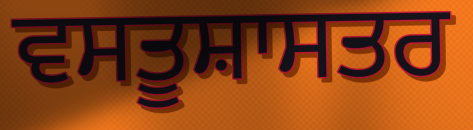
ਵਸਤੂਸ਼ਾਸਤਰ